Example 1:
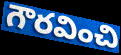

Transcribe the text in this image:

గౌరవించి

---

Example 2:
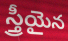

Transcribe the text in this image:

స్త్రీయైన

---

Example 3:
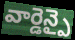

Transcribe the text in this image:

వార్డెన్పై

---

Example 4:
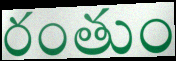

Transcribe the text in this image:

రంతుం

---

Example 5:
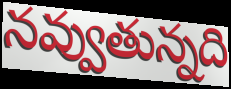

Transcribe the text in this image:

నవ్వుతున్నది